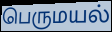
பெருமயல்